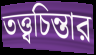
তত্ত্বচিন্তার